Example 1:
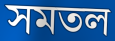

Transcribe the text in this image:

সমতল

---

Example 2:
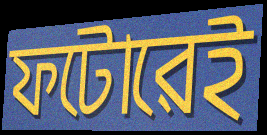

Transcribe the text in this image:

ফটোৱেই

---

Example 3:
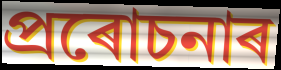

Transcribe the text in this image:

প্ৰৰোচনাৰ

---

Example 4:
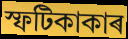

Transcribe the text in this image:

স্ফটিকাকাৰ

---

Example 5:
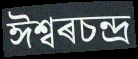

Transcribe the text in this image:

ঈশ্বৰচন্দ্ৰ